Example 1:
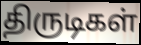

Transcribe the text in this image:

திருடிகள்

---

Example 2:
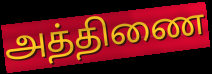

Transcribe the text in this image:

அத்திணை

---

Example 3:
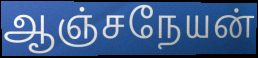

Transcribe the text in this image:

ஆஞ்சநேயன்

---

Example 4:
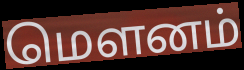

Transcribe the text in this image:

மௌனம்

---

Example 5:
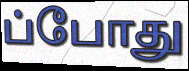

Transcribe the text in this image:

ப்போது